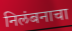
निलंबनाचा